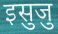
इसुजु